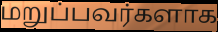
மறுப்பவர்களாக